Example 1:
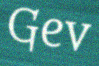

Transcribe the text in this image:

Gev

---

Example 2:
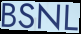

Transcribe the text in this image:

BSNL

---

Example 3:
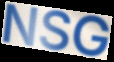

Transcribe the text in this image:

NSG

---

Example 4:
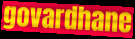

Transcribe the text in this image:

govardhane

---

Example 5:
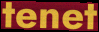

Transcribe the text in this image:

tenet